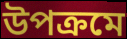
উপক্রমে